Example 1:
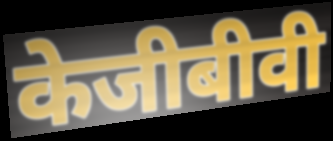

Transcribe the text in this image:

केजीबीवी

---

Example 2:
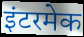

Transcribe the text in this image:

इंटरमेक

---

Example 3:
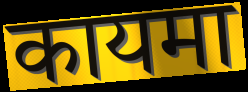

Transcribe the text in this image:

कायमा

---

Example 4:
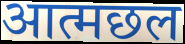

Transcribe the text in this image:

आत्मछल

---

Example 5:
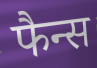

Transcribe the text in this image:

फैन्स